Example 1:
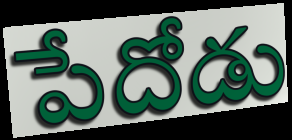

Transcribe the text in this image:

పేదోడు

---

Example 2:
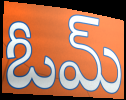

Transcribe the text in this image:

ఓమ్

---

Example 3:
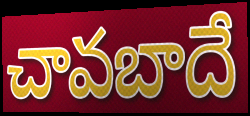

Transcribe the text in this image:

చావబాదే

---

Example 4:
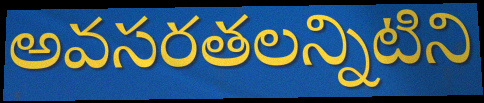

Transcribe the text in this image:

అవసరతలన్నిటిని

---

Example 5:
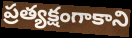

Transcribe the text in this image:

ప్రత్యక్షంగాకాని